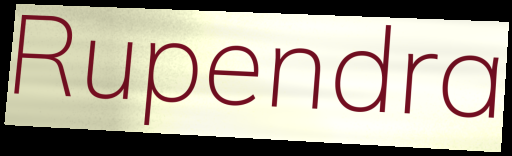
Rupendra